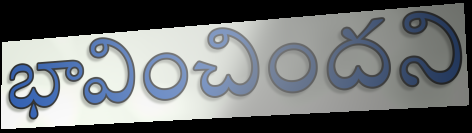
భావించిందని